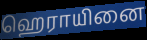
ஹெராயினை